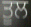
ਤੂਲ